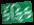
કૅફિક